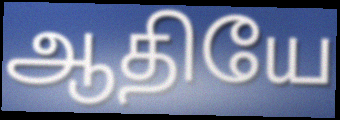
ஆதியே